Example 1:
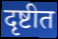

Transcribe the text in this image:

दृष्टीत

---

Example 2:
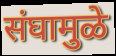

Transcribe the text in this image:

संघामुळे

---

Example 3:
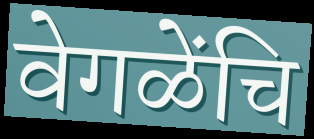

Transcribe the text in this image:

वेगळेंचि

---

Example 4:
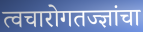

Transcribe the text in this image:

त्वचारोगतज्ज्ञांचा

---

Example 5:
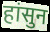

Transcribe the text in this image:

हांसुन